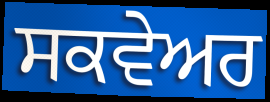
ਸਕਵੇਅਰ